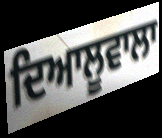
ਦਿਆਲੂਵਾਲਾ